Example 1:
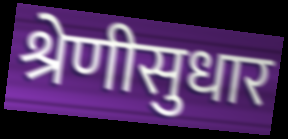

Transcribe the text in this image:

श्रेणीसुधार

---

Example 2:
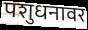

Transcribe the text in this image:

पशुधनावर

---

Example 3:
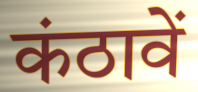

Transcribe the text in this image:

कंठावें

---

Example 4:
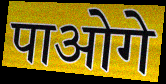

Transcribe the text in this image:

पाओगे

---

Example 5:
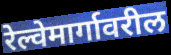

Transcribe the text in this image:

रेल्वेमार्गावरील